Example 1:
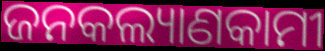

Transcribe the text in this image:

ଜନକଲ୍ୟାଣକାମୀ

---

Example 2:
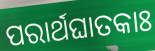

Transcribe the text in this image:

ପରାର୍ଥଘାତକାଃ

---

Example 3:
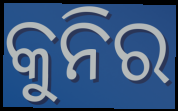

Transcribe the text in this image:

କୁନିର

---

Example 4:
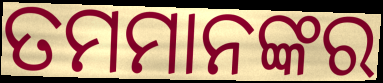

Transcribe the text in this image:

ତମମାନଙ୍କର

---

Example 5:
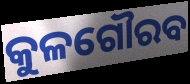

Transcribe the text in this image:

କୁଳଗୌରବ